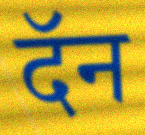
दॅन